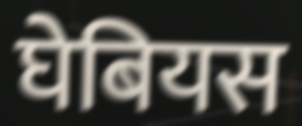
घेबियस